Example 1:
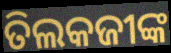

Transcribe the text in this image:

ତିଲକଜୀଙ୍କ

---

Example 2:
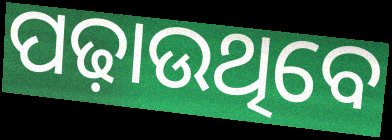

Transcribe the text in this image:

ପଢ଼ାଉଥିବେ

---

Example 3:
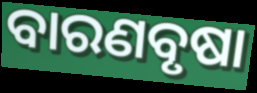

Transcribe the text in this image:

ବାରଣବୃଷା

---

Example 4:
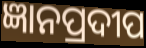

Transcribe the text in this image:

ଜ୍ଞାନପ୍ରଦୀପ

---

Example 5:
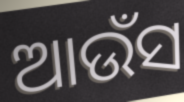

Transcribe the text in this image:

ଆଉଁସ